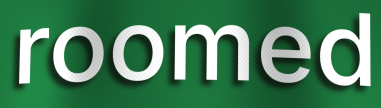
roomed